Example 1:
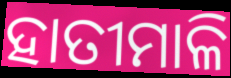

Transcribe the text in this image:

ହାତୀମାଳି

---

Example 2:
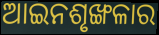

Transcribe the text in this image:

ଆଇନଶୃଙ୍ଖଳାର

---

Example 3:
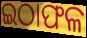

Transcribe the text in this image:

ଇଠାଫଳ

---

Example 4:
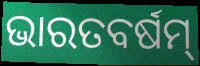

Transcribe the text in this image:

ଭାରତବର୍ଷମ୍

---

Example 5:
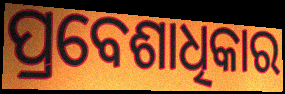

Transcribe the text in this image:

ପ୍ରବେଶାଧିକାର